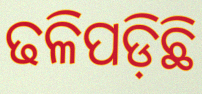
ଢଳିପଡ଼ିଛି